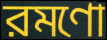
রমণো